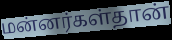
மன்னர்கள்தான்